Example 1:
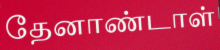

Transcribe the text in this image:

தேனாண்டாள்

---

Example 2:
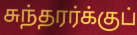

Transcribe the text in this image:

சுந்தரர்க்குப்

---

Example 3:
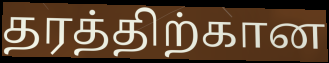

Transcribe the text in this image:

தரத்திற்கான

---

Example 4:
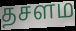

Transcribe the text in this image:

தசளம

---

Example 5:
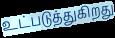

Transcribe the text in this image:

உட்படுத்துகிறது